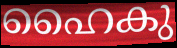
ഹൈകു